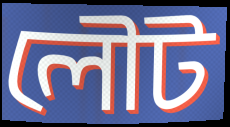
লৌট